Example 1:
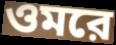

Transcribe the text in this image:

ওমরে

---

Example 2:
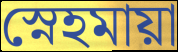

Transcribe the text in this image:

স্নেহমায়া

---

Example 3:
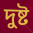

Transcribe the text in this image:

দুষ্ট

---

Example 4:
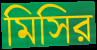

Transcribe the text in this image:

মিসির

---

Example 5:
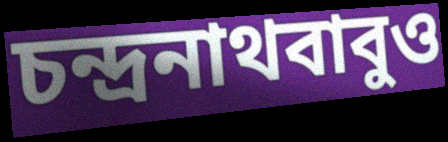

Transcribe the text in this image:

চন্দ্রনাথবাবুও